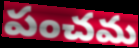
పంచమ